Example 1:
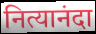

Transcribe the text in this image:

नित्यानंदा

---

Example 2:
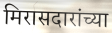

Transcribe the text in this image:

मिरासदारांच्या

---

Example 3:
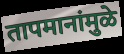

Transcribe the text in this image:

तापमानांमुळे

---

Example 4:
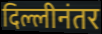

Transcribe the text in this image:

दिल्लीनंतर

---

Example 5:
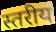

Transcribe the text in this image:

स्तरीय